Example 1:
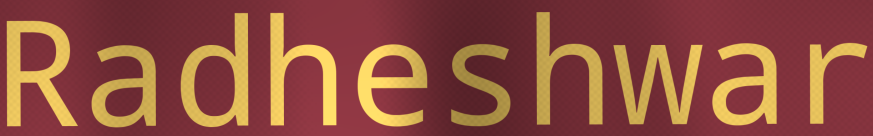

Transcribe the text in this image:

Radheshwar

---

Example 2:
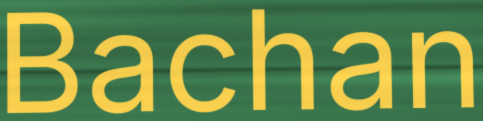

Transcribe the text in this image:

Bachan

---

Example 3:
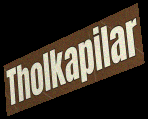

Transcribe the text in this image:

Tholkapilar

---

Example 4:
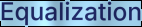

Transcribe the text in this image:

Equalization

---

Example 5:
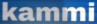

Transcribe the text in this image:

kammi